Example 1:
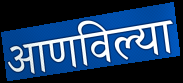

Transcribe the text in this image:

आणविल्या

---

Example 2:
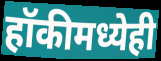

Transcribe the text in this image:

हॉकीमध्येही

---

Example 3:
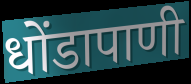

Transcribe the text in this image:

धोंडापाणी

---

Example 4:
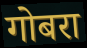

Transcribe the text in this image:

गोबरा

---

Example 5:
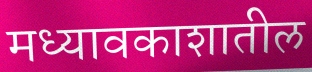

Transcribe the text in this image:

मध्यावकाशातील